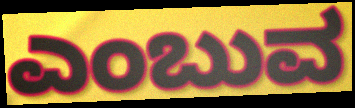
ಎಂಬುವ